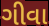
ગીવા